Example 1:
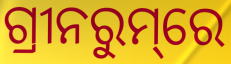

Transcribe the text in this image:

ଗ୍ରୀନରୁମ୍‌ରେ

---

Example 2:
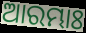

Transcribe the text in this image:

ଆରମ୍ଭାଃ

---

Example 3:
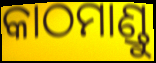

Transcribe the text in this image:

କାଠମାଣ୍ଡୁ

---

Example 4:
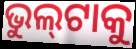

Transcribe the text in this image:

ଭୁଲ୍‍ଟାକୁ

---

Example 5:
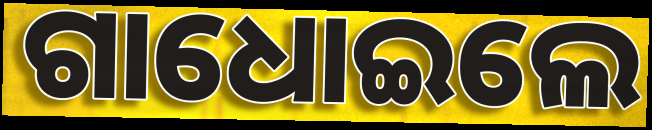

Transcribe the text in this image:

ଗାଧୋଇଲେ